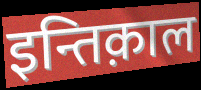
इन्तिक़ाल